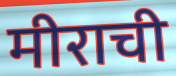
मीराची